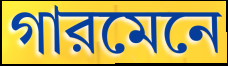
গারমেনে